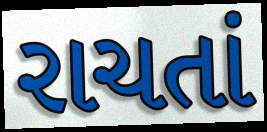
રાચતાં